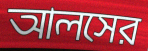
আলসের